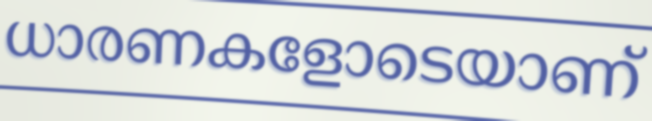
ധാരണകളോടെയാണ്